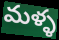
మళ్ళ